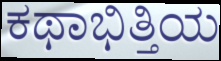
ಕಥಾಭಿತ್ತಿಯ